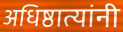
अधिष्ठात्यांनी